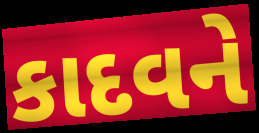
કાદવને